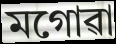
মগোৱা